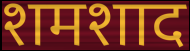
शमशाद